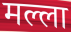
मल्ला